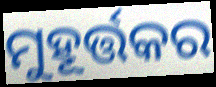
ମୁହୂର୍ତ୍ତକର